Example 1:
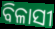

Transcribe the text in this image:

ବିଳାସୀ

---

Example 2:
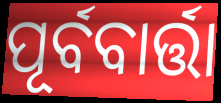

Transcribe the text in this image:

ପୂର୍ବବାର୍ତ୍ତା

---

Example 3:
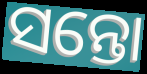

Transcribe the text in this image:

ସନ୍ତୋ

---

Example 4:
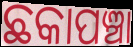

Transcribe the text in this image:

ଛକାପଞ୍ଚା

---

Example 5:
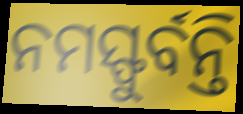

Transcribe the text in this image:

ନମସ୍ଫୁର୍ବନ୍ତି